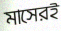
মাসেরই